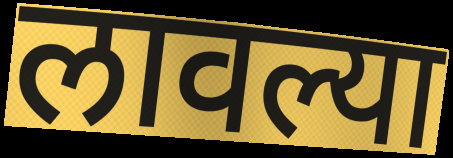
लावल्या